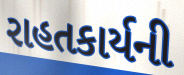
રાહતકાર્યની